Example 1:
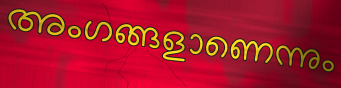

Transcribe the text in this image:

അംഗങ്ങളാണെന്നും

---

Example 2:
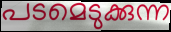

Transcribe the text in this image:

പടമെടുക്കുന്ന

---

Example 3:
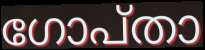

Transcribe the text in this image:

ഗോപ്താ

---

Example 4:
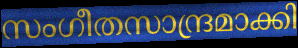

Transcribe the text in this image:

സംഗീതസാന്ദ്രമാക്കി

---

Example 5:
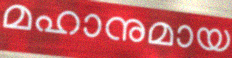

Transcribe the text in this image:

മഹാനുമായ